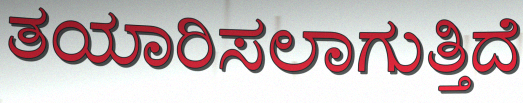
ತಯಾರಿಸಲಾಗುತ್ತಿದೆ